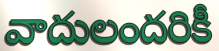
వాదులందరికీ